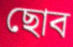
ছোব